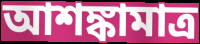
আশঙ্কামাত্র